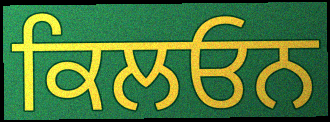
ਕਿਲਓਨ